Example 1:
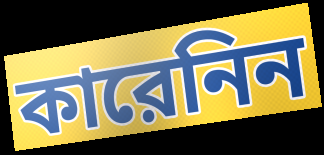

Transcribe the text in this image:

কারেনিন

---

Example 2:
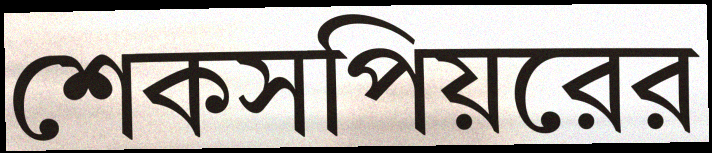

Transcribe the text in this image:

শেকসপিয়রের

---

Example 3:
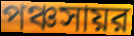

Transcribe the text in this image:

পঞ্চসায়র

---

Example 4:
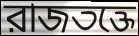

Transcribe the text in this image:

রাজতক্তে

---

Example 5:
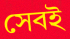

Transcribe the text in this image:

সেবই